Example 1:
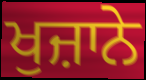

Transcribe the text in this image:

ਖੁਜ਼ਾਨੇ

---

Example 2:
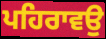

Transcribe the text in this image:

ਪਹਿਰਾਵਉ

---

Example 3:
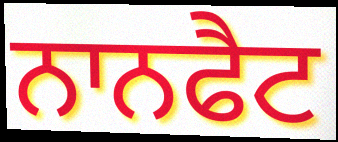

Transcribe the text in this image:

ਨਾਨਫੈਟ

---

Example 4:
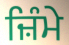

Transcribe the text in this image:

ਜ਼ਿੰਮੇ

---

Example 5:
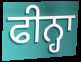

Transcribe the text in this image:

ਫੀਨ੍ਹਾ